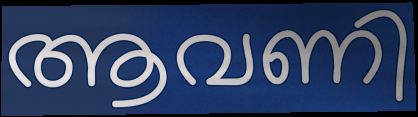
ആവണി